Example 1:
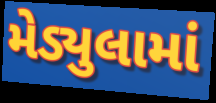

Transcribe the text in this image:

મેડ્યુલામાં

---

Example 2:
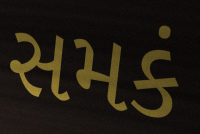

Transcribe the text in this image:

સમકં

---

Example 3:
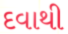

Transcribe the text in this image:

દવાથી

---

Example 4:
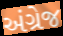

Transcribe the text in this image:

અંગ્રેજ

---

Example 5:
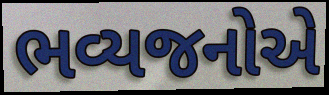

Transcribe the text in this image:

ભવ્યજનોએ